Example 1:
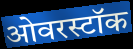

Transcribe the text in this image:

ओवरस्टॉक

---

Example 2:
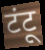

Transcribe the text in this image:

टंटू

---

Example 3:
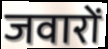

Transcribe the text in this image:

जवारों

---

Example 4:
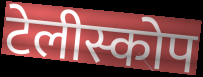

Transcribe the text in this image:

टेलीस्‍कोप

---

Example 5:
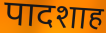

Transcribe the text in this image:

पादशाह